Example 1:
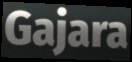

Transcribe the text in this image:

Gajara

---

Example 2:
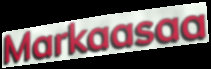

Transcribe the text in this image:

Markaasaa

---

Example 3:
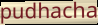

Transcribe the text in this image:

pudhacha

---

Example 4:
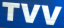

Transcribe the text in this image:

TVV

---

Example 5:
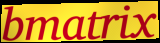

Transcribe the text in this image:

bmatrix